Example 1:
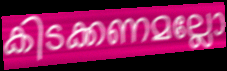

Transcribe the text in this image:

കിടക്കണമല്ലോ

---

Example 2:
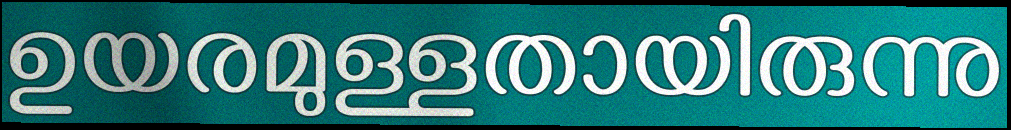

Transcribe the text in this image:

ഉയരമുള്ളതായിരുന്നു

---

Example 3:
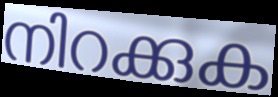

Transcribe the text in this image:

നിറക്കുക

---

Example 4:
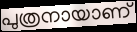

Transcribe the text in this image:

പുത്രനായാണ്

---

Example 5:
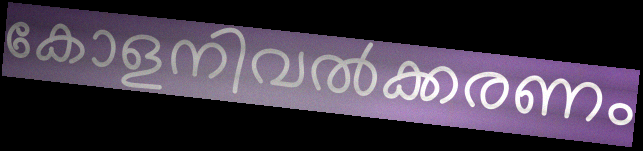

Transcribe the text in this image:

കോളനിവൽക്കരണം